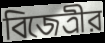
বিজেত্রীর